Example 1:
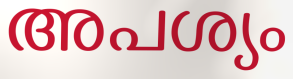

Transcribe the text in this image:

അപശ്യം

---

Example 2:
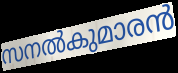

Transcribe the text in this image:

സനൽകുമാരൻ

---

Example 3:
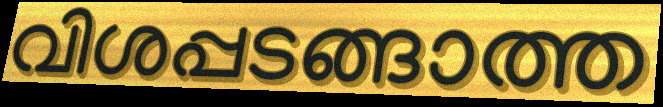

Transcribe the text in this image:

വിശപ്പടങ്ങാത്ത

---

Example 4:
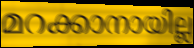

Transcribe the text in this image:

മറക്കാനായില്ല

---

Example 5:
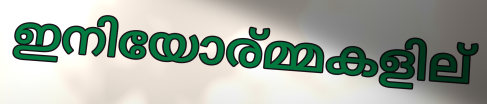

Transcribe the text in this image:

ഇനിയോര്മ്മകളില്